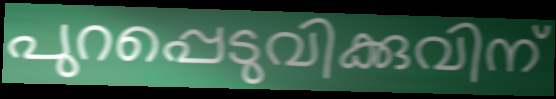
പുറപ്പെടുവിക്കുവിന്